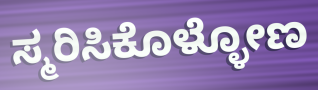
ಸ್ಮರಿಸಿಕೊಳ್ಳೋಣ